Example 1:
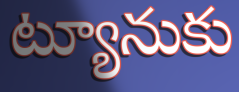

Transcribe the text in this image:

ట్యూనుకు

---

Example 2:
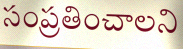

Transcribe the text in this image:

సంప్రతించాలని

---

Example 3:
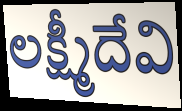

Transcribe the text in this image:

లక్ష్మీదేవి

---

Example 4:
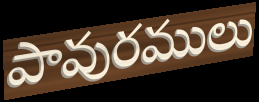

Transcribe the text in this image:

పావురములు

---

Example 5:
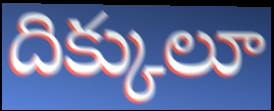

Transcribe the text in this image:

దిక్కులూ